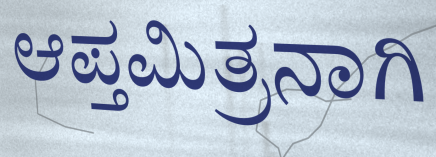
ಆಪ್ತಮಿತ್ರನಾಗಿ